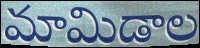
మామిడాల